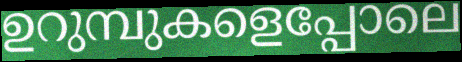
ഉറുമ്പുകളെപ്പോലെ